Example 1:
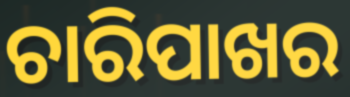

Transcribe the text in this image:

ଚାରିପାଖର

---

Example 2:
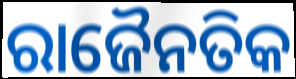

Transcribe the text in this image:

ରାଜୈନତିକ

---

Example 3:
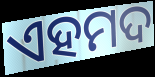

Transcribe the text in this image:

ଏହମଦ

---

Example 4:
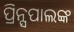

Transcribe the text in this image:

ପ୍ରିନ୍ସପାଲଙ୍କ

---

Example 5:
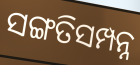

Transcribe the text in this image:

ସଙ୍ଗତିସମ୍ପନ୍ନ